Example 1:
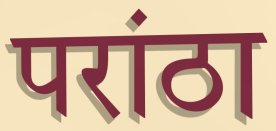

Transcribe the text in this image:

परांठा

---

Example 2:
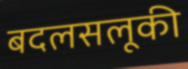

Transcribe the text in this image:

बदलसलूकी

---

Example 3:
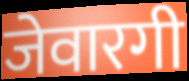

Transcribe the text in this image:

जेवारगी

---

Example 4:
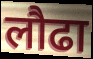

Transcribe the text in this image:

लौढा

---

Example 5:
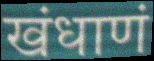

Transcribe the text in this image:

खंधाणं